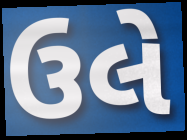
ઉલે